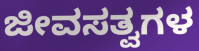
ಜೀವಸತ್ವಗಳ